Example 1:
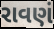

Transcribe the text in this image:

રાવણં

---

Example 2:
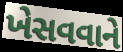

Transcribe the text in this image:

ખેસવવાને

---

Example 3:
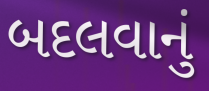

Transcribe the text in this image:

બદલવાનું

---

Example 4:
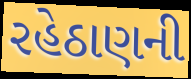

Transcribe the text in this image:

રહેઠાણની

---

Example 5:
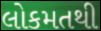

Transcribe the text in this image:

લોકમતથી